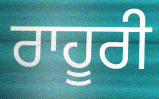
ਰਾਹੂਰੀ